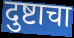
दुष्टाचा